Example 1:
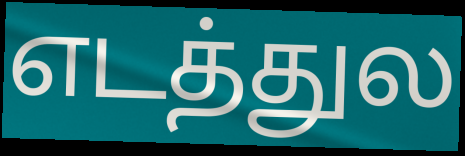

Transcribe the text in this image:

எடத்துல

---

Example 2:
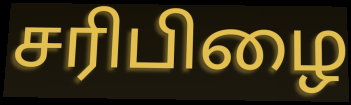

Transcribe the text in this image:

சரிபிழை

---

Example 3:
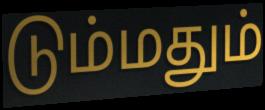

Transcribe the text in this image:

டும்மதும்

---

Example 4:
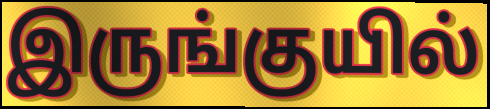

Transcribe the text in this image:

இருங்குயில்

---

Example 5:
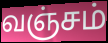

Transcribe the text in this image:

வஞ்சம்